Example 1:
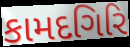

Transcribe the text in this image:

કામદગિરિ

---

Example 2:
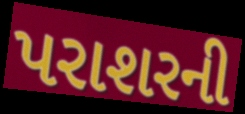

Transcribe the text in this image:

પરાશરની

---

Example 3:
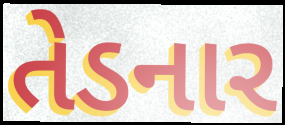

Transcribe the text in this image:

તેડનાર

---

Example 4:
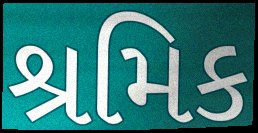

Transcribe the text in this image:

શ્રમિક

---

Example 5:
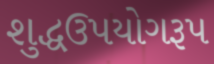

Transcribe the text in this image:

શુદ્ધઉપયોગરૂપ